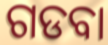
ଗଡବା